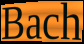
Bach